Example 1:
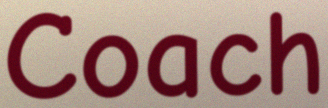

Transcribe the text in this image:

Coach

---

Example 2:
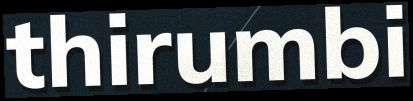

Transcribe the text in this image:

thirumbi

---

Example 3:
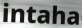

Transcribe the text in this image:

intaha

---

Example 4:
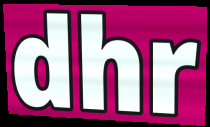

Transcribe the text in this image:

dhr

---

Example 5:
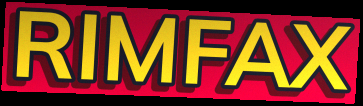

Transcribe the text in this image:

RIMFAX